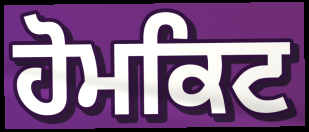
ਹੋਮਕਿਟ